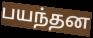
பயந்தன